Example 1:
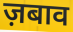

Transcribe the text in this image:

ज़बाव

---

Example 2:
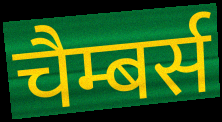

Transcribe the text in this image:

चैम्‍बर्स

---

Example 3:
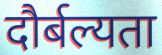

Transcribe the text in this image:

दौर्बल्यता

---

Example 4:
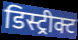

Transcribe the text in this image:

डिस्ट्रीक्ट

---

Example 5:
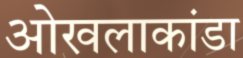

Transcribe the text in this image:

ओखलाकांडा